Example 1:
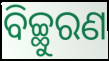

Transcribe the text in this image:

ବିଚ୍ଛୁରଣ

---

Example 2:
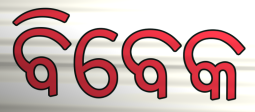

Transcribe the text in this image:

ବିବେକ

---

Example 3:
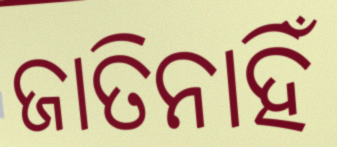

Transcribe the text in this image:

ଜାତିନାହିଁ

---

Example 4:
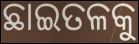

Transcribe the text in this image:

ଛାଇତଳକୁ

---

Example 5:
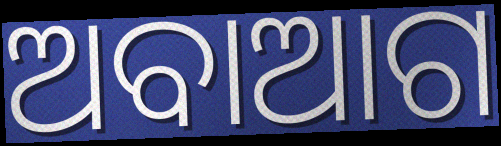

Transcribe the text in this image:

ଅବାଆଗ